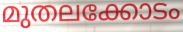
മുതലക്കോടം